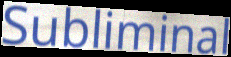
Subliminal